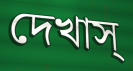
দেখাস্